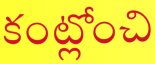
కంట్లోంచి